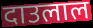
दाउलाल